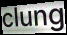
clung